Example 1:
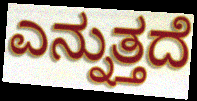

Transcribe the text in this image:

ಎನ್ನುತ್ತದೆ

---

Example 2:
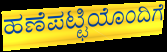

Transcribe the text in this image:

ಹಣೆಪಟ್ಟಿಯೊಂದಿಗೆ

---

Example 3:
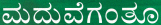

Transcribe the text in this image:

ಮದುವೆಗಂತೂ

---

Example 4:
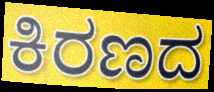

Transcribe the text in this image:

ಕಿರಣದ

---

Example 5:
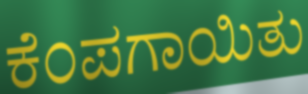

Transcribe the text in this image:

ಕೆಂಪಗಾಯಿತು